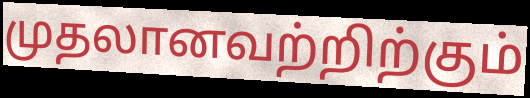
முதலானவற்றிற்கும்